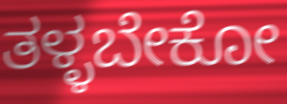
ತಳ್ಳಬೇಕೋ